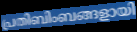
പ്രതിബിംബങ്ങളായി